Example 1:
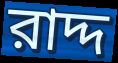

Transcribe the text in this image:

রাদ্দ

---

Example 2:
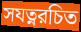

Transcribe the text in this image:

সযত্নরচিত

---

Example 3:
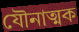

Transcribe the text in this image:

যৌনাত্মক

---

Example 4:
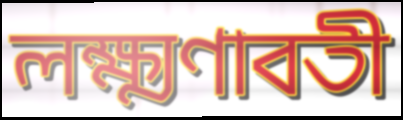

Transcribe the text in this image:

লক্ষ্মণাবতী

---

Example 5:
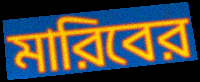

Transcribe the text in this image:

মারিবের